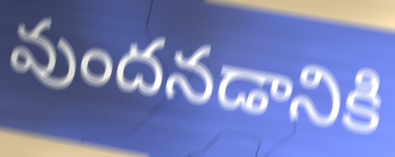
వుందనడానికి